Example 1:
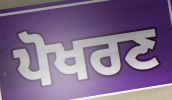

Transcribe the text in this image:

ਪੋਖਰਣ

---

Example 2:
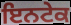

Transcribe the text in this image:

ਇਨਟੇਕ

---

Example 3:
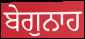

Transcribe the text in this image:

ਬੇਗੁਨਾਹ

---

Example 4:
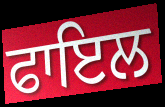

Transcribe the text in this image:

ਫਾਇਲ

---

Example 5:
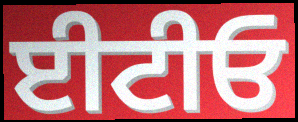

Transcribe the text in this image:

ਈਟੀਓ